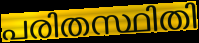
പരിതസ്ഥിതി